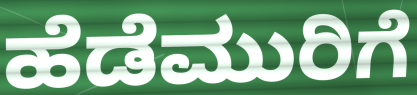
ಹೆಡೆಮುರಿಗೆ